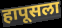
हापूसला